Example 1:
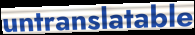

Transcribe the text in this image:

untranslatable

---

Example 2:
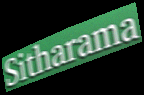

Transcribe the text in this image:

Sitharama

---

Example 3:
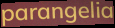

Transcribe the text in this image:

parangelia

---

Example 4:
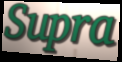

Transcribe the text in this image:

Supra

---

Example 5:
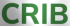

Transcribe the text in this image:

CRIB